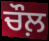
ਚੌਲ਼